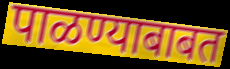
पाळण्याबाबत